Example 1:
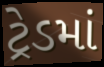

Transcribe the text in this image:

ટ્રેડમાં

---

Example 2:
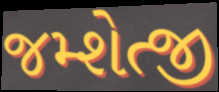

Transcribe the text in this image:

જમ્શેત્જી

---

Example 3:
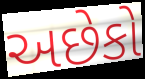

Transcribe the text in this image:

અછેકો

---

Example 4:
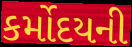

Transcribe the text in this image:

કર્મોદયની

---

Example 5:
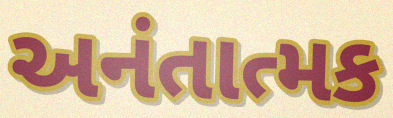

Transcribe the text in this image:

અનંતાત્મક